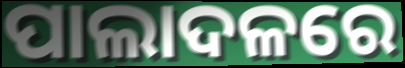
ପାଲାଦଳରେ